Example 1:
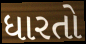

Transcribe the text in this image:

ધારતો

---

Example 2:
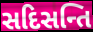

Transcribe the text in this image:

સદિસન્તિ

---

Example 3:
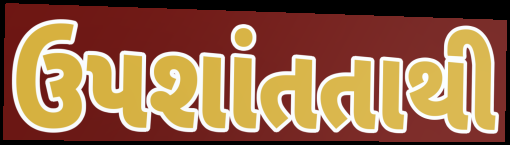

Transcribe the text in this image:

ઉપશાંતતાથી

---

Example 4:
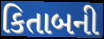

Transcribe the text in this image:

કિતાબની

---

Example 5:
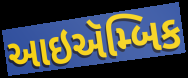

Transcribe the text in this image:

આઇઍમ્બિક